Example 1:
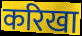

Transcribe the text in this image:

करिखा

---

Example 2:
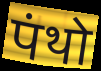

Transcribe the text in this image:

पंथो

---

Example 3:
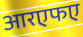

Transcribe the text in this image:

आरएफए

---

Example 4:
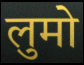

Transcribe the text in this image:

लुमो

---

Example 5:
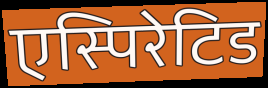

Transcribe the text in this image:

एस्पिरेटिड